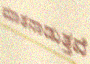
ಮಾತನಾಡುತ್ತವೆ